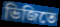
ভিজিতে